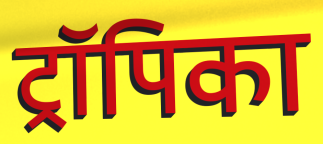
ट्रॉपिका